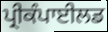
ਪ੍ਰੀਕੰਪਾਈਲਡ